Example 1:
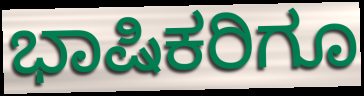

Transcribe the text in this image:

ಭಾಷಿಕರಿಗೂ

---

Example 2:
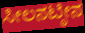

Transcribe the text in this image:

ಸೀಲನಟ್ಠೇನ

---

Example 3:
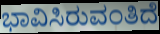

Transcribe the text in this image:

ಭಾವಿಸಿರುವಂತಿದೆ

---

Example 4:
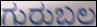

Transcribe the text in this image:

ಗುರುಬಲ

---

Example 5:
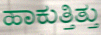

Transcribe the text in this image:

ಹಾಕುತ್ತಿತ್ತು